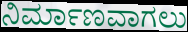
ನಿರ್ಮಾಣವಾಗಲು